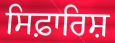
ਸਿਫ਼ਾਰਿਸ਼